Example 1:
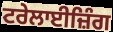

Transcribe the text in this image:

ਟਰੇਲਾਈਜ਼ਿੰਗ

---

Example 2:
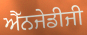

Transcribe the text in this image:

ਐੱਨਜੇਡੀਜੀ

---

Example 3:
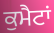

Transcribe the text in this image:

ਕੁਮੈਟਾਂ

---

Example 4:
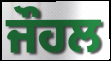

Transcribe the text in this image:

ਜੌਹਲ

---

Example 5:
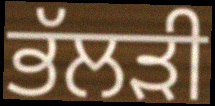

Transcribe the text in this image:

ਭੱਲੜੀ